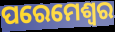
ପରେମେଶ୍ଵର